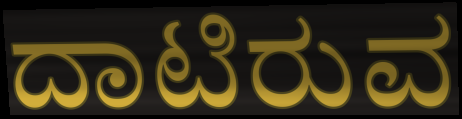
ದಾಟಿರುವ